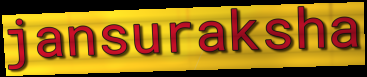
jansuraksha